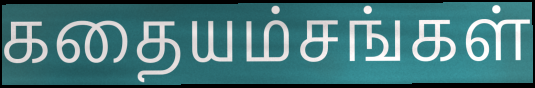
கதையம்சங்கள்